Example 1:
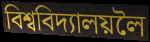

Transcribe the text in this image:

বিশ্ববিদ্যালয়লৈ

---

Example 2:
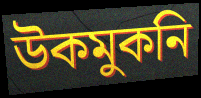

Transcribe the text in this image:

উকমুকনি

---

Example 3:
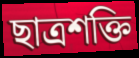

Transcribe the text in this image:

ছাত্ৰশক্তি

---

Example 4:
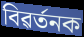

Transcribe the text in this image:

বিৱৰ্তনক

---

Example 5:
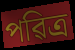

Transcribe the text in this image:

পৱিত্ৰ